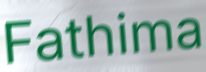
Fathima